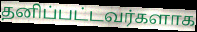
தனிப்பட்டவர்களாக